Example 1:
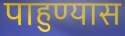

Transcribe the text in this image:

पाहुण्यास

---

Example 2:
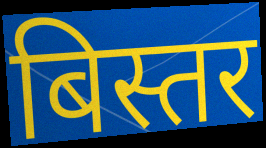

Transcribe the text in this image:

बिस्तर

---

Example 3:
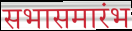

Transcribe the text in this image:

सभासमारंभ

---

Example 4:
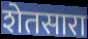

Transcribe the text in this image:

शेतसारा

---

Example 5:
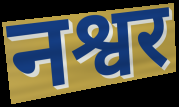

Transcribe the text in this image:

नश्वर